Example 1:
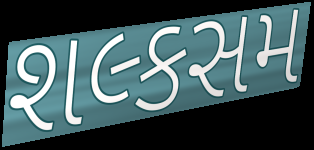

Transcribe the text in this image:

શલ્કસમ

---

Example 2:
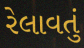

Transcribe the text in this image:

રેલાવતું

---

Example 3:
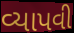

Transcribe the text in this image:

વ્યાપવી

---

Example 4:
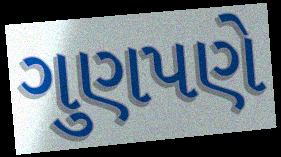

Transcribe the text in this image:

ગુણપણે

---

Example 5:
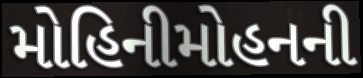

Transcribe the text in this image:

મોહિનીમોહનની